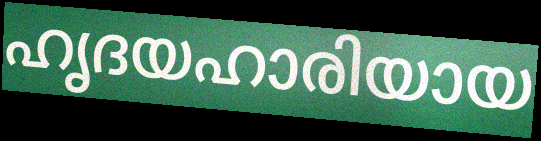
ഹൃദയഹാരിയായ